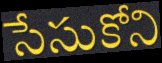
సేసుకోని